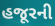
હજૂરની